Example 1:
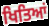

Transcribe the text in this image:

ਖਿਤਿਆਂ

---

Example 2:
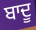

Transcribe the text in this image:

ਬਾਦੂ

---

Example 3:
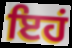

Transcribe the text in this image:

ਇਹਂ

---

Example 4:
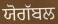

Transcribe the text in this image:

ਯੋਗੱਬਲ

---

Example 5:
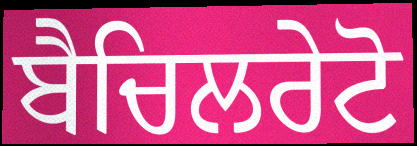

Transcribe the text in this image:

ਬੈਚਿਲਰੇਟੋ